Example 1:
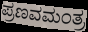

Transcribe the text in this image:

ಪ್ರಣವಮಂತ್ರ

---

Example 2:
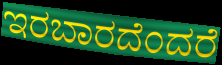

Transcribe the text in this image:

ಇರಬಾರದೆಂದರೆ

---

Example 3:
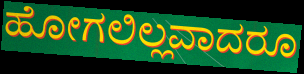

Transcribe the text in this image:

ಹೋಗಲಿಲ್ಲವಾದರೂ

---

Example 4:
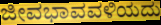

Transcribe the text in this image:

ಜೀವಭಾವವಳಿಯದು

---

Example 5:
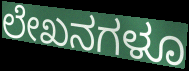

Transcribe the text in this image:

ಲೇಖನಗಳೂ